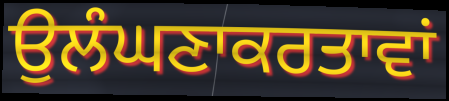
ਉਲੰਘਣਾਕਰਤਾਵਾਂ